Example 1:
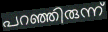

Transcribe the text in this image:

പറഞ്ഞിരുന്ന്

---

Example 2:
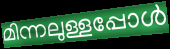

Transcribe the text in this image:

മിന്നലുള്ളപ്പോൾ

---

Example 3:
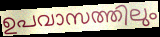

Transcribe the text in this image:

ഉപവാസത്തിലും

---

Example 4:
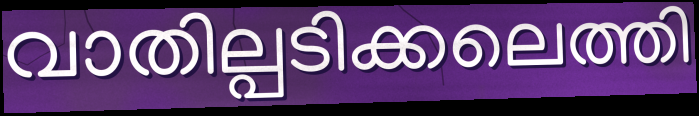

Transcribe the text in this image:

വാതില്പടിക്കലെത്തി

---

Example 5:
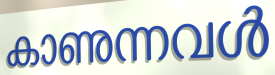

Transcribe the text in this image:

കാണുന്നവൾ